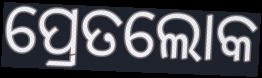
ପ୍ରେତଲୋକ